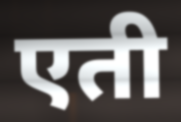
एती